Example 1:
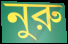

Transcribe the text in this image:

নুরু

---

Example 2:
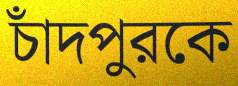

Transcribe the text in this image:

চাঁদপুরকে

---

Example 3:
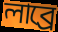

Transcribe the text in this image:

লাব্রে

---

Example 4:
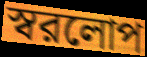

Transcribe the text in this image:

স্বরলোপ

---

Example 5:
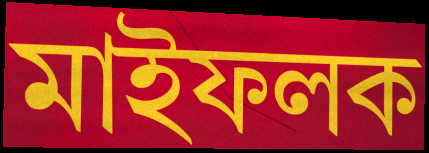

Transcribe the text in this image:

মাইফলক